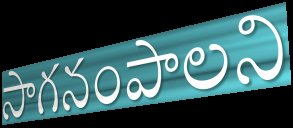
సాగనంపాలని